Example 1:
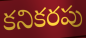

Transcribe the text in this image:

కనికరపు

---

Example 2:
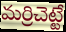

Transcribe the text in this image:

మర్రిచెట్టే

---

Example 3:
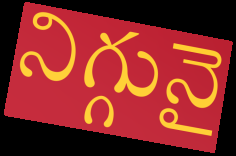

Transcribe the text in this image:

నిగ్గునై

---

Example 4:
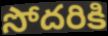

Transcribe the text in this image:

సోదరికి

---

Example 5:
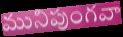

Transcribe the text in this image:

మునిపుంగవా